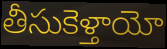
తీసుకెళ్తాయో